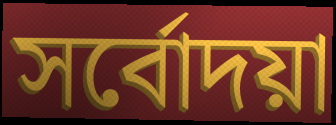
সৰ্বোদয়া